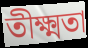
তীক্ষ্মতা